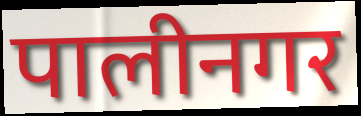
पालीनगर